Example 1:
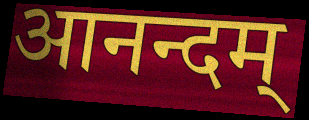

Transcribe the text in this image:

आनन्दम्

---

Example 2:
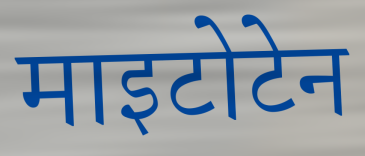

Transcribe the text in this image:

माइटोटेन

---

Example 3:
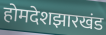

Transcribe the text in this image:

होमदेशझारखंड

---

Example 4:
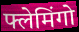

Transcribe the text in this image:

फ्लेमिंगो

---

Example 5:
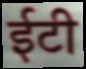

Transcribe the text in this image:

ईटी